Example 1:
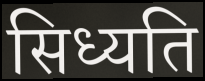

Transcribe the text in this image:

सिध्यति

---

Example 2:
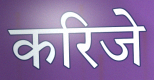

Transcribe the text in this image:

करिजे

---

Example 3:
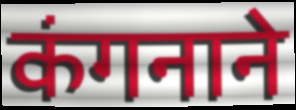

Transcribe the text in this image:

कंगनाने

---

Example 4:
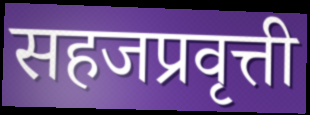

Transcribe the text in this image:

सहजप्रवृत्ती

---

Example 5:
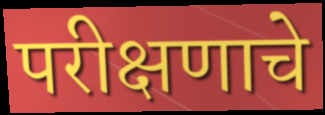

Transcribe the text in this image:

परीक्षणाचे